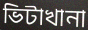
ভিটাখানা